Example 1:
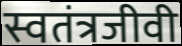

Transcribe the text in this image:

स्वतंत्रजीवी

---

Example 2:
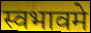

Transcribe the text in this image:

स्वभावमे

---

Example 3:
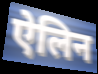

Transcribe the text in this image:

ऐलिन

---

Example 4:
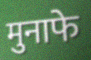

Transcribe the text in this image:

मुनाफे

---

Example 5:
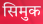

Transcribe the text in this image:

सिमुक